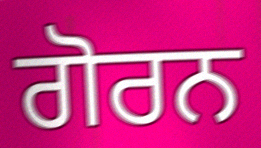
ਗੋਰਨ